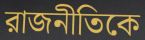
রাজনীতিকে